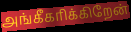
அங்கீகரிக்கிறேன்